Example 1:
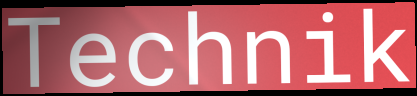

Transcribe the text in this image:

Technik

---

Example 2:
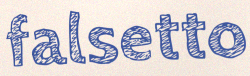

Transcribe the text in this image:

falsetto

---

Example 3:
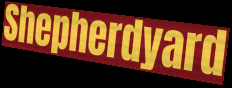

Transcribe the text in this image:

Shepherdyard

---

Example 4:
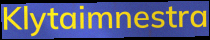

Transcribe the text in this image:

Klytaimnestra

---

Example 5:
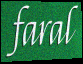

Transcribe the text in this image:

faral